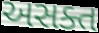
અસક્ત